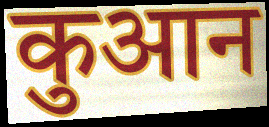
कुआन